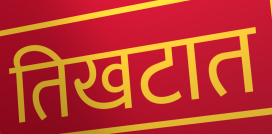
तिखटात